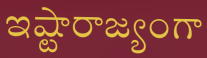
ఇష్టారాజ్యంగా